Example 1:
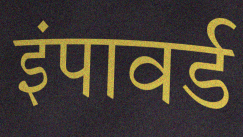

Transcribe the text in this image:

इंपावर्ड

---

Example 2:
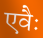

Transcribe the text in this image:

एवैः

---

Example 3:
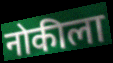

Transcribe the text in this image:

नोकीला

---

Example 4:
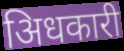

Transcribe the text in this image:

अिधकारी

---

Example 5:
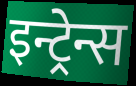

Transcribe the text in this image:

इन्ट्रेन्स